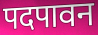
पदपावन